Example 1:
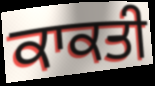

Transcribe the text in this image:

ਕਾਕਤੀ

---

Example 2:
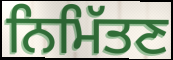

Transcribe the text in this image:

ਨਿਮਿੱਤਣ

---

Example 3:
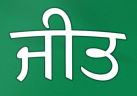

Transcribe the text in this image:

ਜੀਤ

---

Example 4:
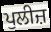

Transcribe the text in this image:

ਪੁਲੀਜ਼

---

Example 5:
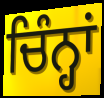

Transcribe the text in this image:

ਚਿੰਨ੍ਹਾਂ